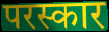
परस्कार